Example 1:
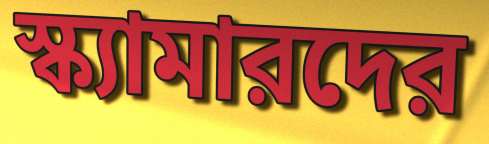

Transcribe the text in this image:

স্ক্যামারদের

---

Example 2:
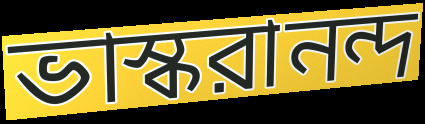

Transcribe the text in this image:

ভাস্করানন্দ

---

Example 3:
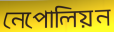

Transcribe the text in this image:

নেপোলিয়ন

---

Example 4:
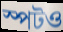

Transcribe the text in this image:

স্পটও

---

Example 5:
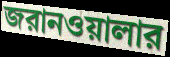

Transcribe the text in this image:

জরানওয়ালার